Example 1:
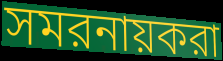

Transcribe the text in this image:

সমরনায়করা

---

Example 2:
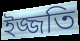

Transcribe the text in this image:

ইজ্জতি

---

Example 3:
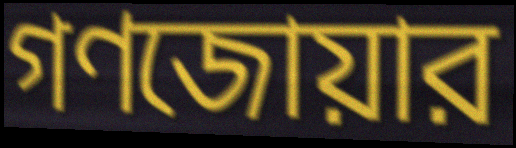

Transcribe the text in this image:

গণজোয়ার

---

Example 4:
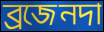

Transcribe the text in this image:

ব্রজেনদা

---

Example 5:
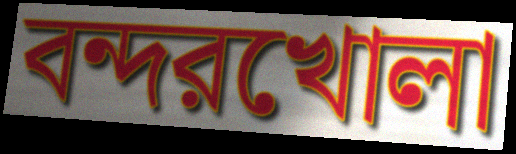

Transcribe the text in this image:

বন্দরখোলা